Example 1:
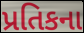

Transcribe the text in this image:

પ્રતિકના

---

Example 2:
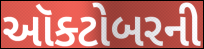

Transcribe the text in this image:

ઑક્ટોબરની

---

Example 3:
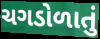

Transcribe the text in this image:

ચગડોળાતું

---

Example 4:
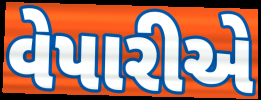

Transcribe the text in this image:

વેપારીએ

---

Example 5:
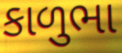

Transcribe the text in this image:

કાળુભા